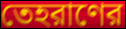
তেহরাণের